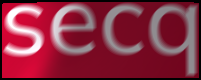
secq